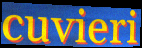
cuvieri